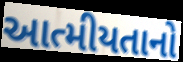
આત્મીયતાનો